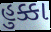
હુક્કા